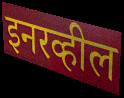
इनरव्हील